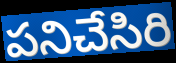
పనిచేసిరి